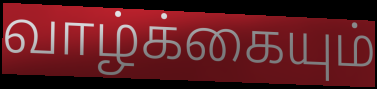
வாழ்க்கையும்